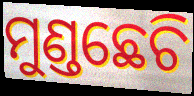
ମୁଣ୍ଡଛେଚି